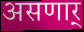
असणार्